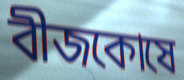
বীজকোষে